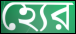
হ্যের